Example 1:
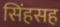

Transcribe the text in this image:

सिंहसह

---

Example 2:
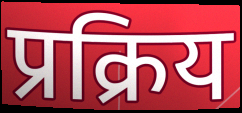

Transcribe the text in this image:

प्रक्रिय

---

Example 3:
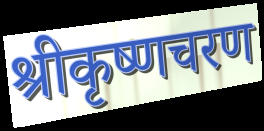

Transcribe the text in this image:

श्रीकृष्णचरण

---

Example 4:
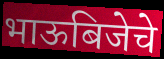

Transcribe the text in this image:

भाऊबिजेचे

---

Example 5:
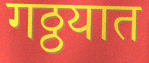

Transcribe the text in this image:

गठ्ठयात